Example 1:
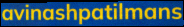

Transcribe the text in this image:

avinashpatilmans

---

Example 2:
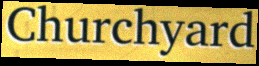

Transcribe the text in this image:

Churchyard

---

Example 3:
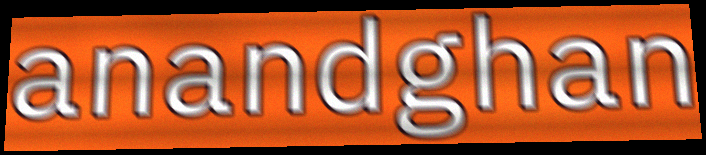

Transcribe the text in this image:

anandghan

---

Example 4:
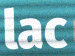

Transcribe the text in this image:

lac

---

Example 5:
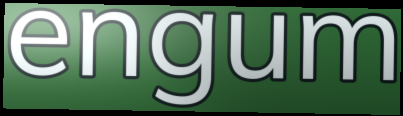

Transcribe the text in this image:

engum